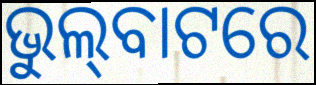
ଭୁଲ୍‌ବାଟରେ